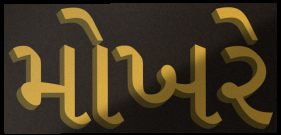
મોખરે